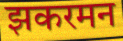
झकरमन